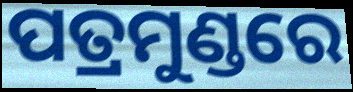
ପତ୍ରମୁଣ୍ଡରେ